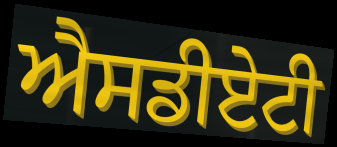
ਐਸਡੀਏਟੀ